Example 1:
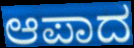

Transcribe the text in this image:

ಆಪಾದ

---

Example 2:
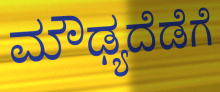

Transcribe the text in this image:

ಮೌಢ್ಯದೆಡೆಗೆ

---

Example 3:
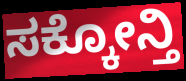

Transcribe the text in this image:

ಸಕ್ಕೋನ್ತಿ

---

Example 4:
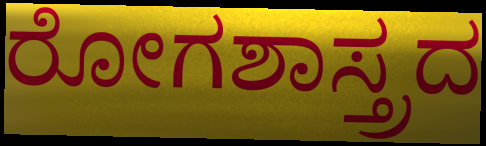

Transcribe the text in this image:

ರೋಗಶಾಸ್ತ್ರದ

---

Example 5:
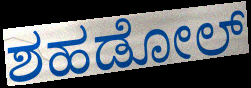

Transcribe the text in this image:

ಶಹಡೋಲ್